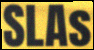
SLAs